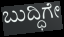
ಬುದ್ಧಿಗೇ